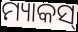
ମ୍ୟାକସ୍